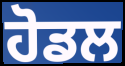
ਹੋਡਲ